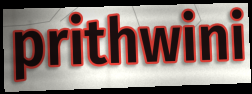
prithwini